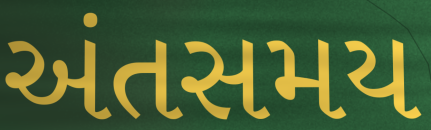
અંતસમય